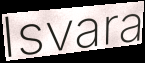
Isvara